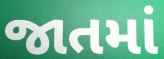
જાતમાં